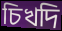
চিখদি